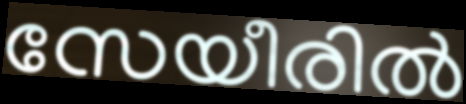
സേയീരിൽ